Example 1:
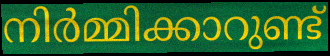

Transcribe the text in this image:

നിർമ്മിക്കാറുണ്ട്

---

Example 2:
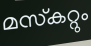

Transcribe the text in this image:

മസ്‌കറ്റും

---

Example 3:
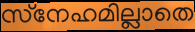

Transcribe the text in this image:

സ്‌നേഹമില്ലാതെ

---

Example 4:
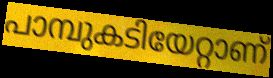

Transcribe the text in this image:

പാമ്പുകടിയേറ്റാണ്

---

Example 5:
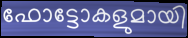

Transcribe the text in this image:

ഫോട്ടോകളുമായി